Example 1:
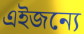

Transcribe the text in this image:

এইজন্যে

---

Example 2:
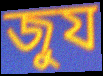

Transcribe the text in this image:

জুয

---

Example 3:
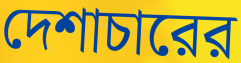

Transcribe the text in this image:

দেশাচারের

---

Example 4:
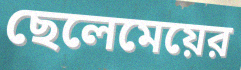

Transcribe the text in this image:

ছেলেমেয়ের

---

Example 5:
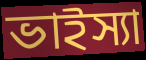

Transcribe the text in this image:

ভাইস্যা